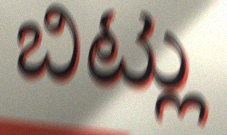
ಬಿಟ್ಲು